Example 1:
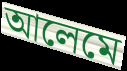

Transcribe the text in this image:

আলেমে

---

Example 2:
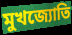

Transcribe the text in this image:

মুখজ্যোতি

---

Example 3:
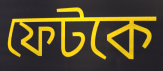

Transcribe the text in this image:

ফেটকে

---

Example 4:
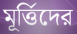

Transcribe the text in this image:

মূর্ত্তিদের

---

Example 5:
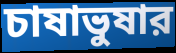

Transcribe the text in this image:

চাষাভুষার